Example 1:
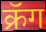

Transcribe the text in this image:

क्रॅग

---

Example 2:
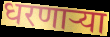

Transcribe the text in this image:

धरणाऱ्या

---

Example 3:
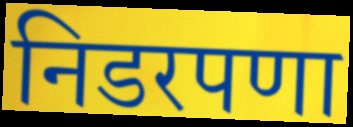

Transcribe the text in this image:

निडरपणा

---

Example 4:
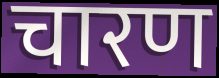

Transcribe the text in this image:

चारण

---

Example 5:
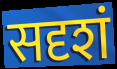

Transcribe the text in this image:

सदृशं